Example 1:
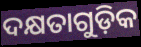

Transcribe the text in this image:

ଦକ୍ଷତାଗୁଡ଼ିକ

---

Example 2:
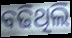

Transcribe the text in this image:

ବଢିଥିଲି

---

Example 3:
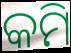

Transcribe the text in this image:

କମି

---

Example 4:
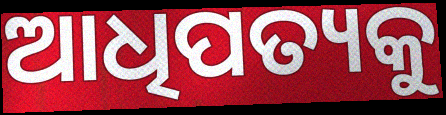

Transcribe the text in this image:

ଆଧିପତ୍ୟକୁ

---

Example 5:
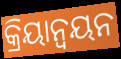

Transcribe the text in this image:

କ୍ରିୟାନ୍ଵୟନ